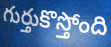
గుర్తుకొస్తోంది